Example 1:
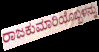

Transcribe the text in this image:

ರಾಜಕುಮಾರಿಯೊಬ್ಬಳನ್ನು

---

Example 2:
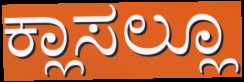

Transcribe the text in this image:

ಕ್ಲಾಸಲ್ಲೂ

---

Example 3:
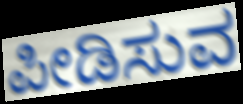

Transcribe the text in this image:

ಪೀಡಿಸುವ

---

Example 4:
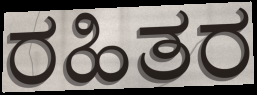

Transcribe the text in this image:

ರಹಿತರ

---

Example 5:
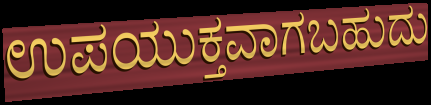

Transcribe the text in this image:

ಉಪಯುಕ್ತವಾಗಬಹುದು